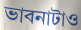
ভাবনাটাও